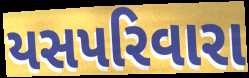
યસપરિવારા